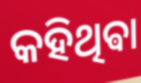
କହିଥିଵା